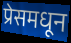
प्रेसमधून